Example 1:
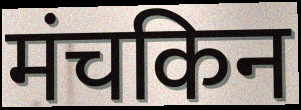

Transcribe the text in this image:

मंचकिन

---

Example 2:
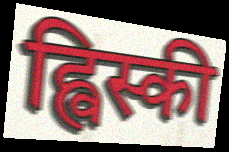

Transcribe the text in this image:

ह्विस्की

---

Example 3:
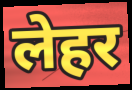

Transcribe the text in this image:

लेहर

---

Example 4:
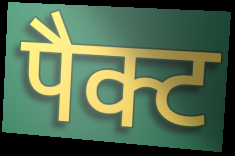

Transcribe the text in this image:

पैक्ट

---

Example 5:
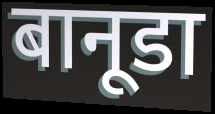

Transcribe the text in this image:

बानूडा